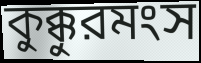
কুক্কুরমংস